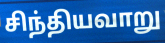
சிந்தியவாறு